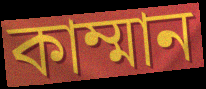
কাম্মান